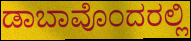
ಡಾಬಾವೊಂದರಲ್ಲಿ